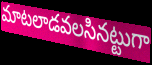
మాటలాడవలసినట్టుగా